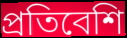
প্রতিবেশি